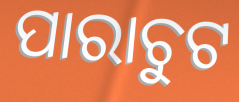
ପାରାଚୁଟ